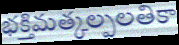
భక్తిమత్కల్పలతికా